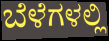
ಬೆಳೆಗಳಲ್ಲಿ